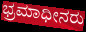
ಭ್ರಮಾಧೀನರು